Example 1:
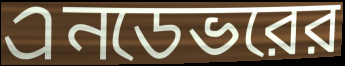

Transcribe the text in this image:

এনডেভরের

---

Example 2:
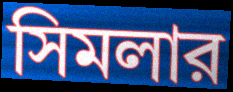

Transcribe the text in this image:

সিমলার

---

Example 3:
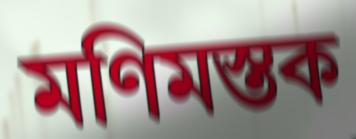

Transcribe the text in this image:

মণিমস্তক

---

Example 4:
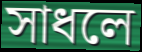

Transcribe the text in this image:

সাধলে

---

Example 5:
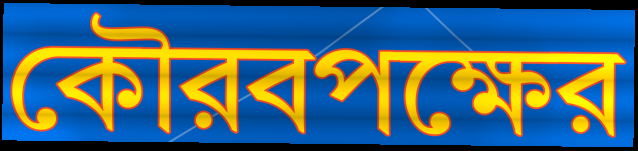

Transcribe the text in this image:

কৌরবপক্ষের